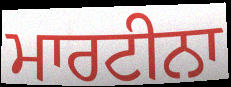
ਮਾਰਟੀਨਾ